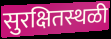
सुरक्षितस्थळी